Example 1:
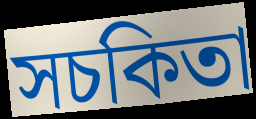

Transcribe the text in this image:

সচকিতা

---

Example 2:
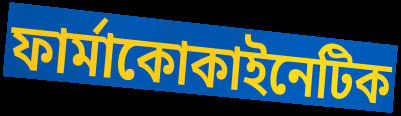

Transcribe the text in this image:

ফার্মাকোকাইনেটিক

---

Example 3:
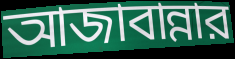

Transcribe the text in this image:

আজাবান্নার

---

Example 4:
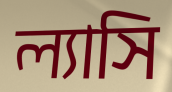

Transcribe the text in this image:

ল্যাসি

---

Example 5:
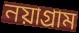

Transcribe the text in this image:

নয়াগ্রাম